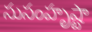
సుసంహృష్టా